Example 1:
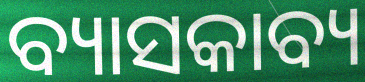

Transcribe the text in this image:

ବ୍ୟାସକାବ୍ୟ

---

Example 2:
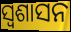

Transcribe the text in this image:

ସ୍ବଶାସନ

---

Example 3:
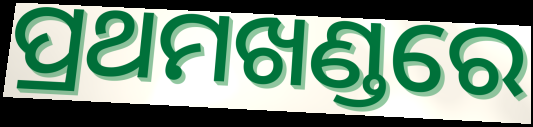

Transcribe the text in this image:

ପ୍ରଥମଖଣ୍ଡରେ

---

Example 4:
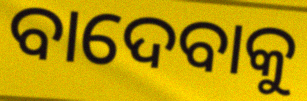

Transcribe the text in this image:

ବାଦେବାକୁ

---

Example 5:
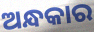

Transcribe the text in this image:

ଅନ୍ଧକାର